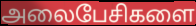
அலைபேசிகளை